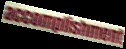
accomplishment